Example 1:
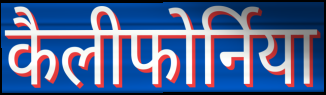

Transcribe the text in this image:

कैलीफोर्निया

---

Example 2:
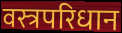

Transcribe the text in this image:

वस्त्रपरिधान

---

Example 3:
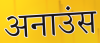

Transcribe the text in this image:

अनाउंस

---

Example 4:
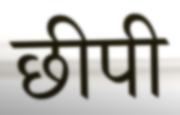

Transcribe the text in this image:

छीपी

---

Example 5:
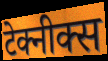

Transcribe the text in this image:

टेक्नीक्स